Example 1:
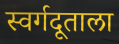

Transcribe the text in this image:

स्वर्गदूताला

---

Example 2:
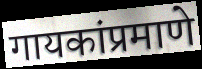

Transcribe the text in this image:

गायकांप्रमाणे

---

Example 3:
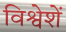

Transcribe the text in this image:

विश्वेशें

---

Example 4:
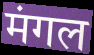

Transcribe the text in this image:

मंगल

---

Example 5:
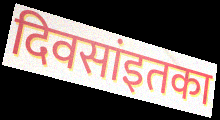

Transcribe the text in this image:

दिवसांइतका